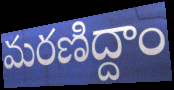
మరణిద్దాం